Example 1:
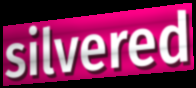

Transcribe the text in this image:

silvered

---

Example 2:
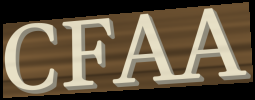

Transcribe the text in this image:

CFAA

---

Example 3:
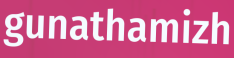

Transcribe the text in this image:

gunathamizh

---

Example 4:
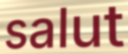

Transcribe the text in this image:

salut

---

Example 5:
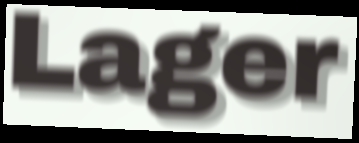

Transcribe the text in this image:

Lager